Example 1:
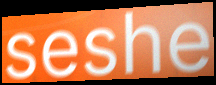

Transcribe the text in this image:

seshe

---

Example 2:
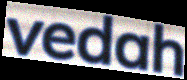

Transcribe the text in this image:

vedah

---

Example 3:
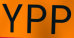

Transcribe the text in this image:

YPP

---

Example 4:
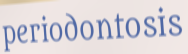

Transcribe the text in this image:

periodontosis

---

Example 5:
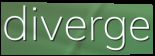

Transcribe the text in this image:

diverge